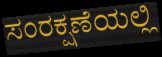
ಸಂರಕ್ಷಣೆಯಲ್ಲಿ